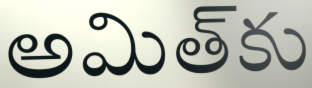
అమిత్‌కు